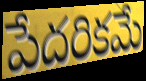
పేదరికమే